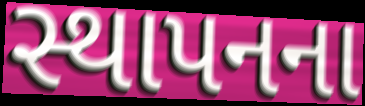
સ્થાપનના